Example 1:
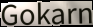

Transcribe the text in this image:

Gokarn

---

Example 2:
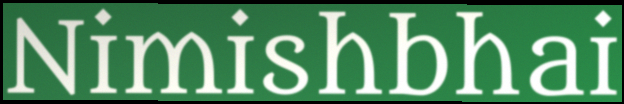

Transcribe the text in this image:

Nimishbhai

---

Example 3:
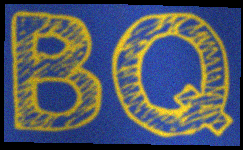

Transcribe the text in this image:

BQ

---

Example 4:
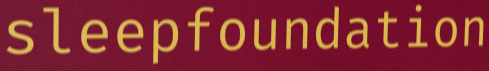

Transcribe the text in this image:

sleepfoundation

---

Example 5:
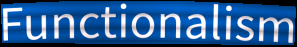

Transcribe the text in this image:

Functionalism